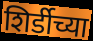
शिर्डीच्या